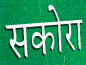
सकोरा